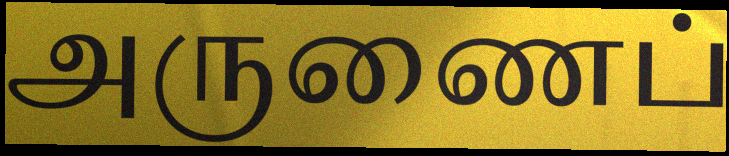
அருணைப்